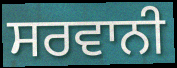
ਸਰਵਾਨੀ